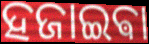
ହଜାଇଵା